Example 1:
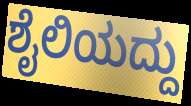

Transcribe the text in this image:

ಶೈಲಿಯದ್ದು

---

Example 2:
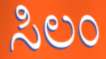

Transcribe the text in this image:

ಸಿಲಂ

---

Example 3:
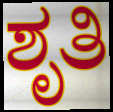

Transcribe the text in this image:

ಶೃತಿ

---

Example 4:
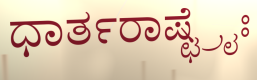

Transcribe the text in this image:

ಧಾರ್ತರಾಷ್ಟ್ರೈಃ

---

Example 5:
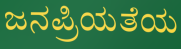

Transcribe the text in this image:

ಜನಪ್ರಿಯತೆಯ